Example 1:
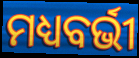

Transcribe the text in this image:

ମଧ୍ଯବର୍ଭୀ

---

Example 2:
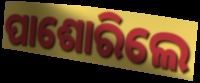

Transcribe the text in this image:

ପାଶୋରିଲେ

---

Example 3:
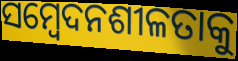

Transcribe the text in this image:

ସମ୍ବେଦନଶୀଳତାକୁ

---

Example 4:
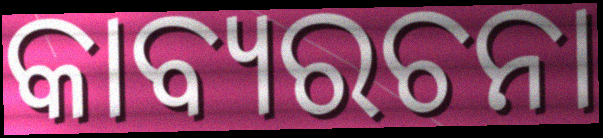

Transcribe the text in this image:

କାବ୍ୟରଚନା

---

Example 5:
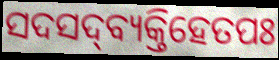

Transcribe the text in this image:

ସଦସଦ୍‌ବ୍ୟକ୍ତିହେତପଃ